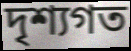
দৃশ্যগত